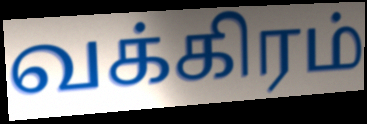
வக்கிரம்